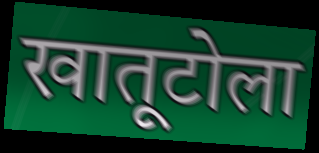
खातूटोला